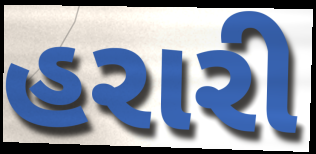
હરારી